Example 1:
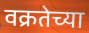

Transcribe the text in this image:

वक्रतेच्या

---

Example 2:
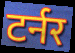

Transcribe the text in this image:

टर्नर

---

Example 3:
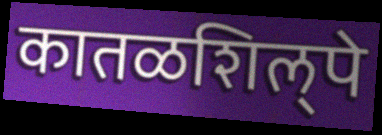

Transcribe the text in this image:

कातळशिल्पे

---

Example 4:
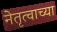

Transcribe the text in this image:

नेतृत्वाच्या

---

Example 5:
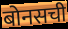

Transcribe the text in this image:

बोनसची